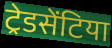
ट्रेडसेंटिया